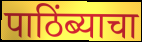
पाठिंब्याचा